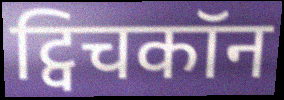
ट्विचकॉन